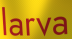
larva